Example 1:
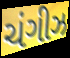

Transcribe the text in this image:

ચંગીઝ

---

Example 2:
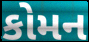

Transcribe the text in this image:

કોમન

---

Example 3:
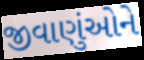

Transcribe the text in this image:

જીવાણુંઓને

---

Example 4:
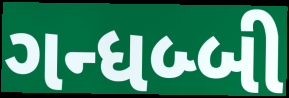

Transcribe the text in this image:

ગન્ધબ્બી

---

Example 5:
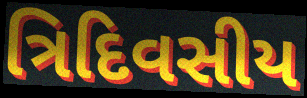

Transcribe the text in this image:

ત્રિદિવસીય